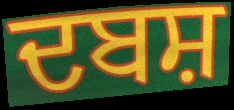
ਦਬਸ਼